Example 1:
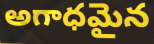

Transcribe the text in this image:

అగాధమైన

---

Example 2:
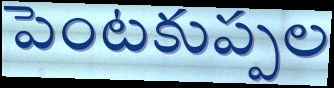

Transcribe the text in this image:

పెంటకుప్పల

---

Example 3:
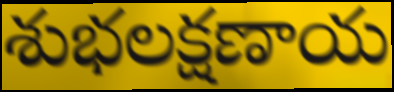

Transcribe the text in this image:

శుభలక్షణాయ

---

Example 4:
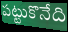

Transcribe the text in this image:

పట్టుకొనేది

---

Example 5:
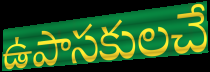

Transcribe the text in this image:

ఉపాసకులచే